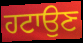
ਹਟਾਉਣ